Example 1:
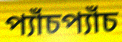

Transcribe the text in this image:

প্যাঁচপ্যাঁচ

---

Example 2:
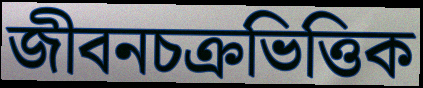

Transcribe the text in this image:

জীবনচক্রভিত্তিক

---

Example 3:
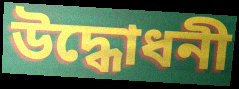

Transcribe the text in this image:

উদ্ধোধনী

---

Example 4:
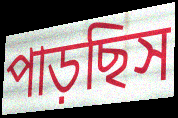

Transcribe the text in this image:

পাড়ছিস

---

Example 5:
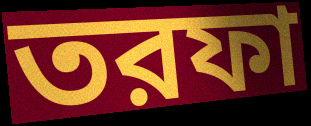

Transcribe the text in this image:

তরফা